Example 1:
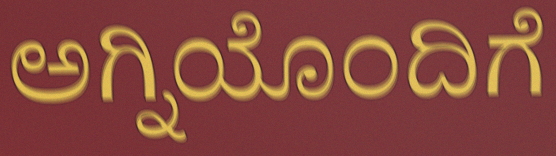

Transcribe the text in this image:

ಅಗ್ನಿಯೊಂದಿಗೆ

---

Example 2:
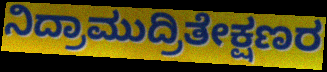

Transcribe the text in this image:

ನಿದ್ರಾಮುದ್ರಿತೇಕ್ಷಣರ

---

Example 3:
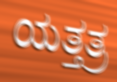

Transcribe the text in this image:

ಯತ್ತತ್ರ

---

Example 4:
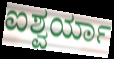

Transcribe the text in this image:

ಐಶ್ವರ್ಯಾ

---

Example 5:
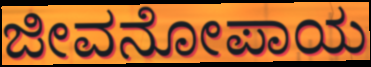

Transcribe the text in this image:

ಜೀವನೋಪಾಯ